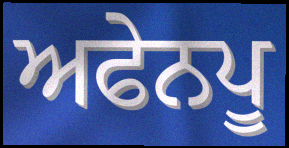
ਅਫੇਨਪੂ